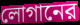
লোগানের